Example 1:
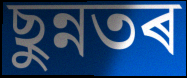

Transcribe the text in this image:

ছুন্নতৰ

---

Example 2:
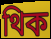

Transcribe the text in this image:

থিক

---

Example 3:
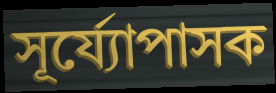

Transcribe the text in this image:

সূৰ্য্যোপাসক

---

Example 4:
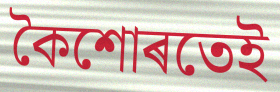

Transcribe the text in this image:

কৈশোৰতেই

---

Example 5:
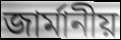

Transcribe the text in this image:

জাৰ্মানীয়